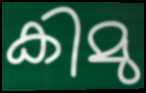
കിമു